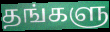
தங்களு